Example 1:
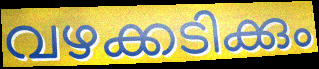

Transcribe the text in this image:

വഴക്കടിക്കും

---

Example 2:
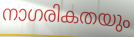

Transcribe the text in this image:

നാഗരികതയും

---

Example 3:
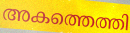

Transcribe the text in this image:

അകത്തെത്തി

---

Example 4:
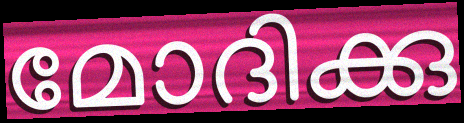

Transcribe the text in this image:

മോദിക്കു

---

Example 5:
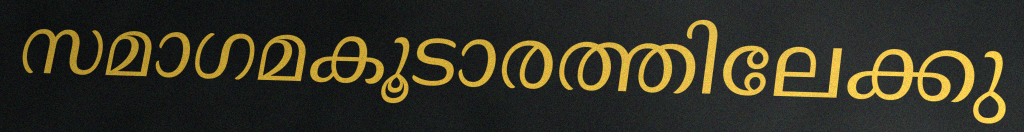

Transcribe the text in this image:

സമാഗമകൂടാരത്തിലേക്കു